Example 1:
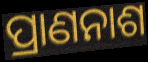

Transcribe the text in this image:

ପ୍ରାଣନାଶ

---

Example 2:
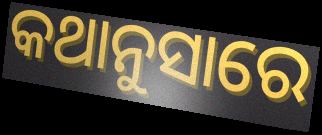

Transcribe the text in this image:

କଥାନୁସାରେ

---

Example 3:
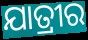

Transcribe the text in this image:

ଯାତ୍ରୀର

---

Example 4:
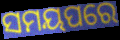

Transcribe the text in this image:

ସମୟପରେ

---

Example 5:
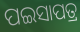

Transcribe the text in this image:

ପଇସାପତ୍ର